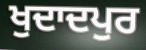
ਖੁਦਾਦਪੁਰ